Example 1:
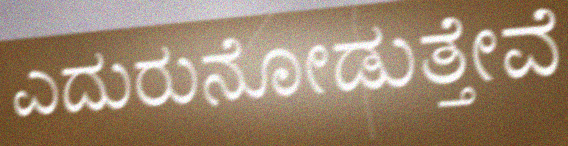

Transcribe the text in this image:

ಎದುರುನೋಡುತ್ತೇವೆ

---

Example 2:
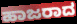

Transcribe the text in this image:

ಹಾಜರಾದ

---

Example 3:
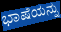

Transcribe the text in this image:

ಭಾಷೆಯನ್ನು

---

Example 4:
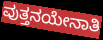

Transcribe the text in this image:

ವುತ್ತನಯೇನಾತಿ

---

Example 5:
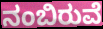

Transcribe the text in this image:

ನಂಬಿರುವೆ